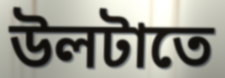
উলটাতে